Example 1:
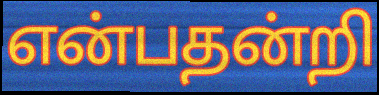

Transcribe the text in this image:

என்பதன்றி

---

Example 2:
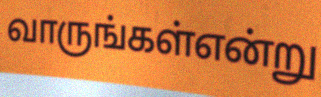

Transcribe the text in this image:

வாருங்கள்என்று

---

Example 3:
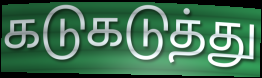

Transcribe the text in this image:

கடுகடுத்து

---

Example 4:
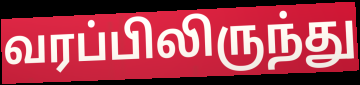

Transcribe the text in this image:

வரப்பிலிருந்து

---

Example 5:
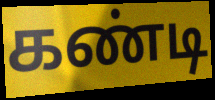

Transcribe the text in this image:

கண்டி